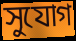
সুযোগ